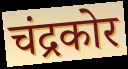
चंद्रकोर